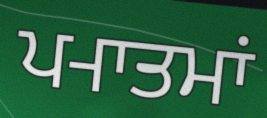
ਪ੍ਮਾਤਮਾਂ